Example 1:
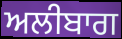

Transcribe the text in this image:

ਅਲੀਬਾਗ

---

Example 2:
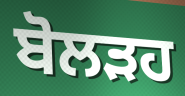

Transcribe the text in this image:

ਬੋਲੜਹ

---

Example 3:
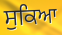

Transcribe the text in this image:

ਸੁਕਿਆ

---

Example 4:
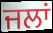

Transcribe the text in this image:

ਜਲਾਂ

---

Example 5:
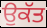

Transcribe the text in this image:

ਉਕੱਤ